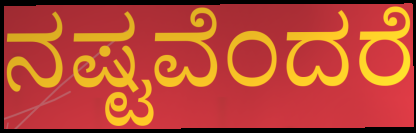
ನಷ್ಟವೆಂದರೆ